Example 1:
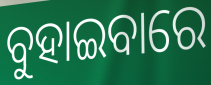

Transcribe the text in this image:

ବୁହାଇବାରେ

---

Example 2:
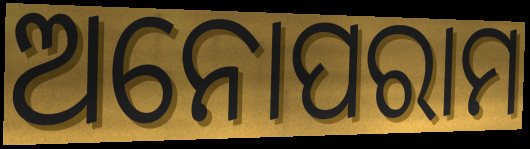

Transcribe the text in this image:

ଅନୋପରାମ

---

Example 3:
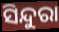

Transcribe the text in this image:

ସିନ୍ଦୁରା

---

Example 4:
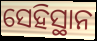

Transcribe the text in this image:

ସେହିସ୍ଥାନ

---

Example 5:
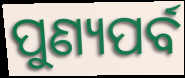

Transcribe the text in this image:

ପୁଣ୍ୟପର୍ବ